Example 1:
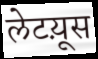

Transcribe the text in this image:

लेटय़ूस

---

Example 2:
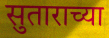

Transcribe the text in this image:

सुताराच्या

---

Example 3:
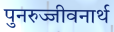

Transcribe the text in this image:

पुनरुज्जीवनार्थ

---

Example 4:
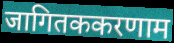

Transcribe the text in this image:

जागितककरणाम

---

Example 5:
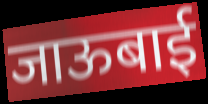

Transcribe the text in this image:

जाऊबाई